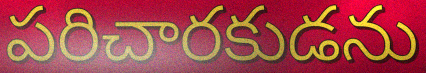
పరిచారకుడను